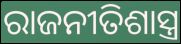
ରାଜନୀତିଶାସ୍ତ୍ର